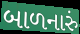
બાળનારું